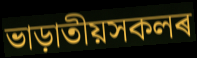
ভাড়াতীয়সকলৰ